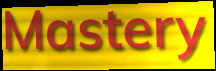
Mastery